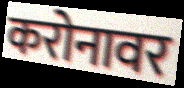
करोनावर